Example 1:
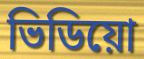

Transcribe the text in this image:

ভিডিয়ো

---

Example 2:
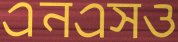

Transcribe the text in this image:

এনএসও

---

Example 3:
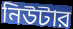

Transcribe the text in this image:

নিউটার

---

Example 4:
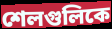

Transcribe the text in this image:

শেলগুলিকে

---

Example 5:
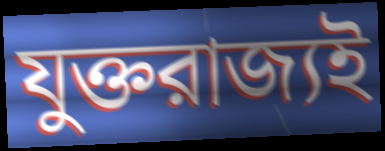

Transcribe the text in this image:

যুক্তরাজ্যই